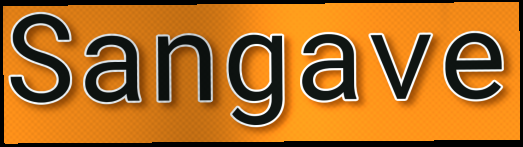
Sangave